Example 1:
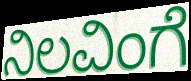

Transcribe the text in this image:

ನಿಲವಿಂಗೆ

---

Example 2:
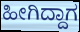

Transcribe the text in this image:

ಹೀಗಿದ್ದಾಗ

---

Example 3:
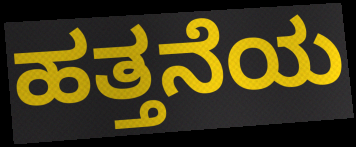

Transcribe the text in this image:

ಹತ್ತನೆಯ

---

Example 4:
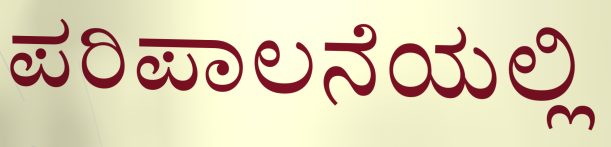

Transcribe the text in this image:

ಪರಿಪಾಲನೆಯಲ್ಲಿ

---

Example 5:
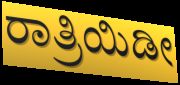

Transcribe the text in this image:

ರಾತ್ರಿಯಿಡೀ